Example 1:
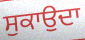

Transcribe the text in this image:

ਸੁਕਾਉਦਾ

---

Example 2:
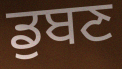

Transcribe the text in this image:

ਡੁਬਣ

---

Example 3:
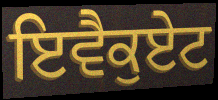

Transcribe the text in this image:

ਇਵੈਕੁਏਟ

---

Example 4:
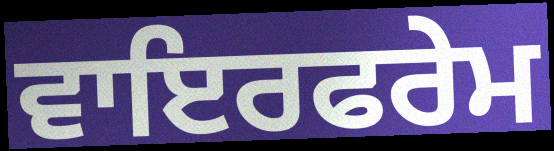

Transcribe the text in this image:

ਵਾਇਰਫਰੇਮ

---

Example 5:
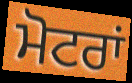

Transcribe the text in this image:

ਮੋਟਰਾਂ